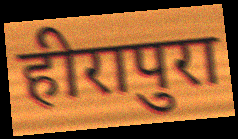
हीरापुरा